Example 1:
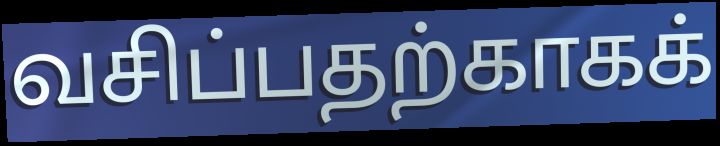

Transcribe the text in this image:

வசிப்பதற்காகக்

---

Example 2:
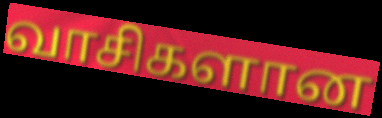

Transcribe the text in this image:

வாசிகளான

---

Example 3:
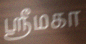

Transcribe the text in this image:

ஸ்ரீமகா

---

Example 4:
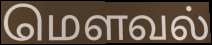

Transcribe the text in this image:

மௌவல்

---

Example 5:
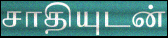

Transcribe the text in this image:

சாதியுடன்